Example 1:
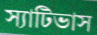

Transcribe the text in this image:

স্যাটিভাস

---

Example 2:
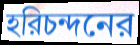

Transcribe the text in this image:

হরিচন্দনের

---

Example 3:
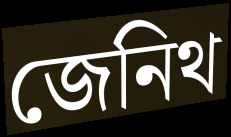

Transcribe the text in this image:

জেনিথ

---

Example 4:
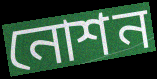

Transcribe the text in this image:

নোশন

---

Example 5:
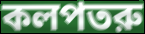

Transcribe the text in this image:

কলপতরু